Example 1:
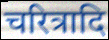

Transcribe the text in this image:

चरित्रादि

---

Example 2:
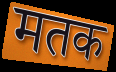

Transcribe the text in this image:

मतक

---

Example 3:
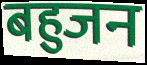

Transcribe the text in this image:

बहुजन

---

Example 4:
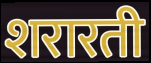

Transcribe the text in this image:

शरारती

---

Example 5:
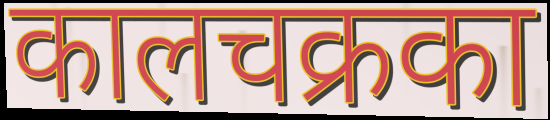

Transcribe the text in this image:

कालचक्रका